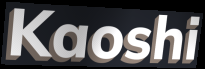
Kaoshi